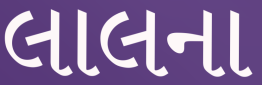
લાલના